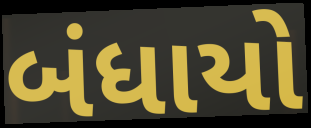
બંધાયો